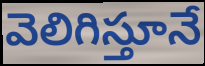
వెలిగిస్తూనే